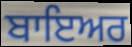
ਬਾਇਅਰ